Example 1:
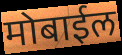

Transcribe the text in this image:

मोबाईल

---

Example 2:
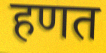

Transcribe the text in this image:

हणत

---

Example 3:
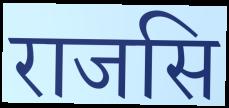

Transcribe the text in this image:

राजसि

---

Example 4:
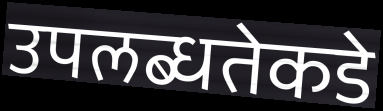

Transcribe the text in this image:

उपलब्धतेकडे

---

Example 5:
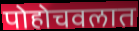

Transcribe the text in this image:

पोहोचवलात